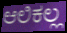
ಆಲಿಕಲ್ಲ